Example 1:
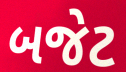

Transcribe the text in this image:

બજેટ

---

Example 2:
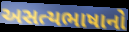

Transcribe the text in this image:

અસત્યભાષાનો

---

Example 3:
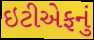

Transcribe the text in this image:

ઇટીએફનું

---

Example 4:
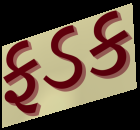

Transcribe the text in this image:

ફડક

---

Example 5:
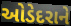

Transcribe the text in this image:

ઓડેદરાને